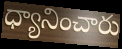
ధ్యానించారు